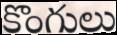
కొంగులు